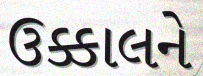
ઉક્કાલને